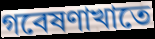
গবেষণাখাতে